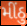
મીંઠુ